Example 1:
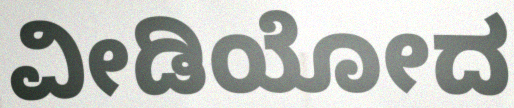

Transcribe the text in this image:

ವೀಡಿಯೋದ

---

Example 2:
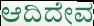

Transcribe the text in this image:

ಆದಿದೇವ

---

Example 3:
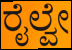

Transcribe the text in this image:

ರೈಲ್ವೇ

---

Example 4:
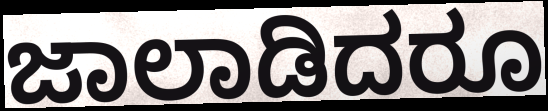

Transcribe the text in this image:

ಜಾಲಾಡಿದರೂ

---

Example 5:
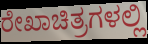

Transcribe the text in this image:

ರೇಖಾಚಿತ್ರಗಳಲ್ಲಿ